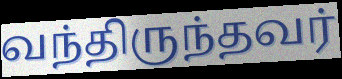
வந்திருந்தவர்